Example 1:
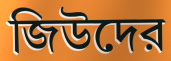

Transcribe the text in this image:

জিউদের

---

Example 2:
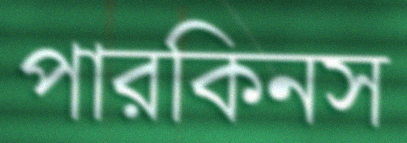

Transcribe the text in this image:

পারকিনস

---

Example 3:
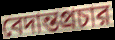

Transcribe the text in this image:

বেদান্তপ্রচার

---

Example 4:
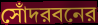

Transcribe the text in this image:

সোঁদরবনের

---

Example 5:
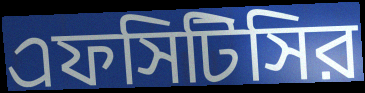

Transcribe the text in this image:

এফসিটিসির